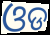
ଓଡ